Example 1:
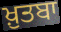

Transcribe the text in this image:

ਖ਼ੁਤਬਾ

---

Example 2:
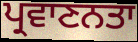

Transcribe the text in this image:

ਪ੍ਰਵਾਣਨਤਾ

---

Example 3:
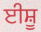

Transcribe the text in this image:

ਈਸ਼ੂ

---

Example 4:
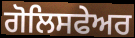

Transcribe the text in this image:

ਗੋਲਿਸਫੇਅਰ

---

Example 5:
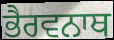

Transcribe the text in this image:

ਭੈਰਵਨਾਥ